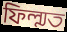
ফিল্মত